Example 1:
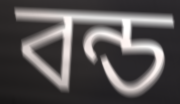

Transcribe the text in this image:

বন্ড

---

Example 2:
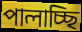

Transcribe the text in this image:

পালাচ্ছি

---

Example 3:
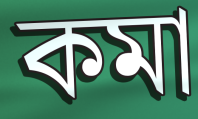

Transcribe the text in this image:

কমা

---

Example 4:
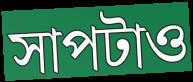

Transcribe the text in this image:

সাপটাও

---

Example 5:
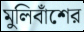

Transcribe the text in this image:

মুলিবাঁশের